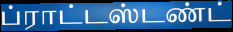
ப்ராட்டஸ்டண்ட்